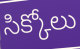
సిక్కోలు